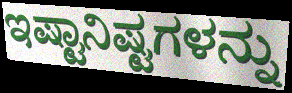
ಇಷ್ಟಾನಿಷ್ಟಗಳನ್ನು